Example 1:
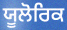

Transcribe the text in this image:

ਯੂਲੋਰਿਕ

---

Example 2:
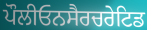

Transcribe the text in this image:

ਪੌਲੀਓਨਸੈਰਚਰੇਟਿਡ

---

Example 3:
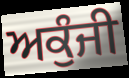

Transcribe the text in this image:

ਅਕੁੰਜੀ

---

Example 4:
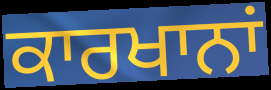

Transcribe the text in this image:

ਕਾਰਖਾਨਾਂ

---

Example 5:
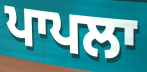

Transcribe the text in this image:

ਪਾਪਲਾ